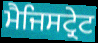
ਮੈਜਿਸਟ੍ਰੇਟ